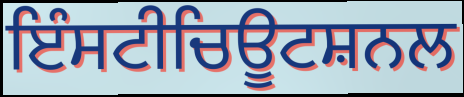
ਇੰਸਟੀਚਿਊਟਸ਼ਨਲ